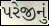
પરેજીનું